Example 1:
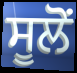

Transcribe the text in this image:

ਸੂਲੋਂ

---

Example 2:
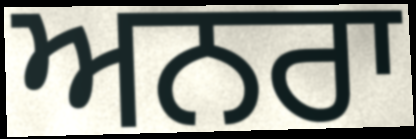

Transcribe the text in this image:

ਅਨਰਾ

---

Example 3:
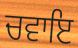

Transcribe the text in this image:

ਚਵਾਇ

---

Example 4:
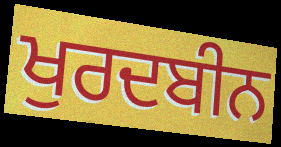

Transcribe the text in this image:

ਖੁਰਦਬੀਨ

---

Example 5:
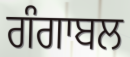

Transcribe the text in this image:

ਗੰਗਾਬਲ